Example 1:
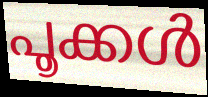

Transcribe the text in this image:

പൂക്കൾ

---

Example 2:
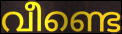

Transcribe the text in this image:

വീണ്ടെ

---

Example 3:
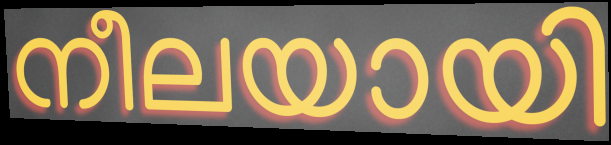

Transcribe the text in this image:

നീലയായി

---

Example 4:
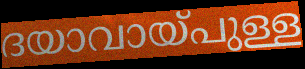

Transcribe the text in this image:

ദയാവായ്പുള്ള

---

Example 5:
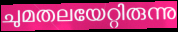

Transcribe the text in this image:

ചുമതലയേറ്റിരുന്നു